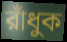
রাঁধুক